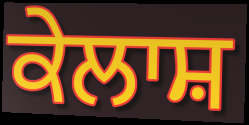
ਕੇਲਾਸ਼